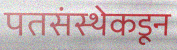
पतसंस्थेकडून